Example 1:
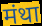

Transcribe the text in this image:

मंथा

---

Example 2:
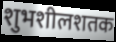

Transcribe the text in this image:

शुभशीलशतक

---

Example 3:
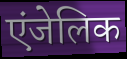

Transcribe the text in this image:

एंजेलिक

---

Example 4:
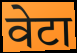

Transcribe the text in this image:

वेटा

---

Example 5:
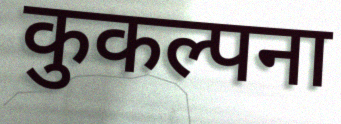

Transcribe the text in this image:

कुकल्पना